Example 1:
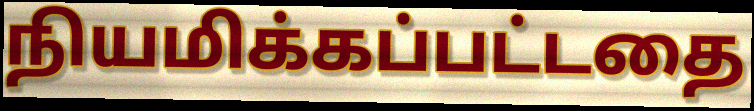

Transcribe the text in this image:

நியமிக்கப்பட்டதை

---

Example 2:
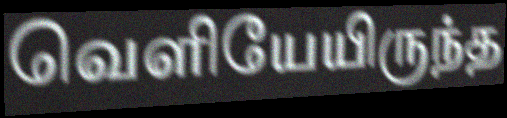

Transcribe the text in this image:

வெளியேயிருந்த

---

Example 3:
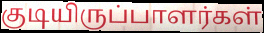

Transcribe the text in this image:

குடியிருப்பாளர்கள்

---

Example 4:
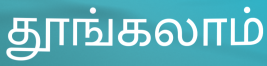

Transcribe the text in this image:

தூங்கலாம்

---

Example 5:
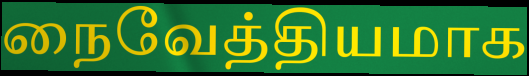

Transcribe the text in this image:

நைவேத்தியமாக